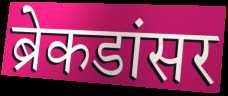
ब्रेकडांसर